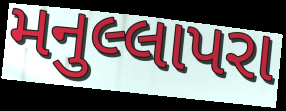
મનુલ્લાપરા